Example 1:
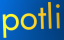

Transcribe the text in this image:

potli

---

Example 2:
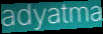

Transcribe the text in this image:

adyatma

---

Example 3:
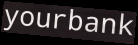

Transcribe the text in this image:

yourbank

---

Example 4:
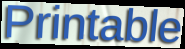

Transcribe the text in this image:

Printable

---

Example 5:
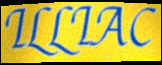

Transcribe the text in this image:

ILLIAC